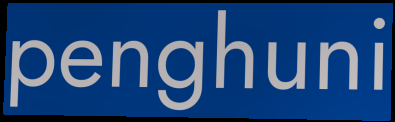
penghuni